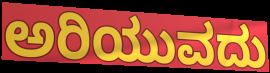
ಅರಿಯುವದು